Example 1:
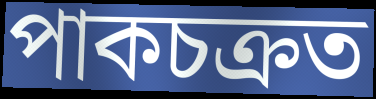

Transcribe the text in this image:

পাকচক্ৰত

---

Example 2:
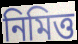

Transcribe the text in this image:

নিমিত্ত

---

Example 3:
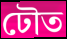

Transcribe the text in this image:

ঢৌত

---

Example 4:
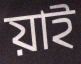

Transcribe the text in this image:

য়াই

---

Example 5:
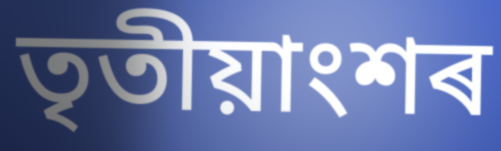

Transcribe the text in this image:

তৃতীয়াংশৰ